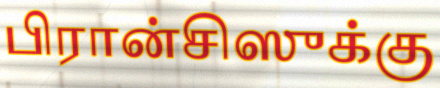
பிரான்சிஸுக்கு